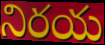
నిరయ